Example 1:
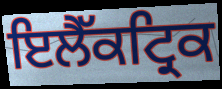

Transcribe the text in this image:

ਇਲੈੱਕਟ੍ਰਿਕ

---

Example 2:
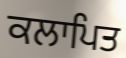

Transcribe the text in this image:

ਕਲਾਪਿਤ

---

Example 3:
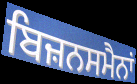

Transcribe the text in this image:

ਬਿਜ਼ਨਸਮੈਨਾਂ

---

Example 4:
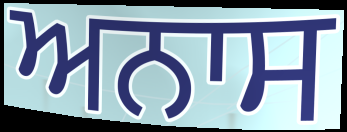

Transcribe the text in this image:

ਅਨਾਸ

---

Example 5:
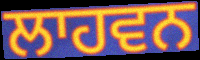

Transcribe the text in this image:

ਲਾਹਵਨ